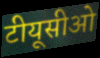
टीयूसीओ